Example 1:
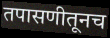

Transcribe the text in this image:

तपासणीतूनच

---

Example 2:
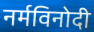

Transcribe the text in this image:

नर्मविनोदी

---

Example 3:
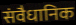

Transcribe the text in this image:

संवैधानिक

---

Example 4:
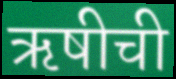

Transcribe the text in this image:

ऋषीची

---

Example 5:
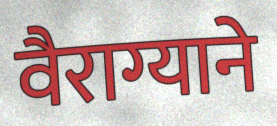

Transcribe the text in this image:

वैराग्याने